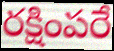
రక్షింపరే